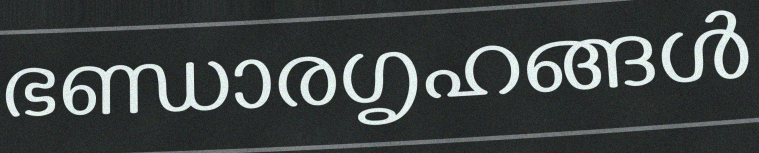
ഭണ്ഡാരഗൃഹങ്ങൾ